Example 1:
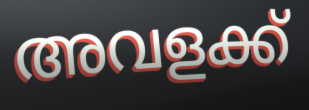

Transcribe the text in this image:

അവളക്ക്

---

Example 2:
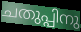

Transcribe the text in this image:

ചതുപ്പിനു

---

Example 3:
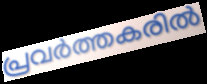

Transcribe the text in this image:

പ്രവർത്തകരിൽ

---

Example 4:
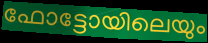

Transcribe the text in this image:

ഫോട്ടോയിലെയും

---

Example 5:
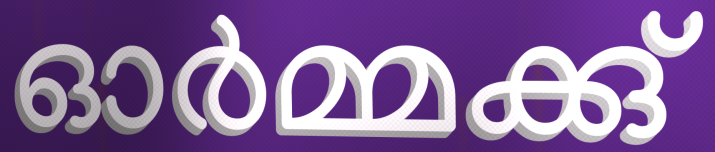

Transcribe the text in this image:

ഓർമ്മക്കു്